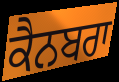
ਕੈਨਬਰਾ